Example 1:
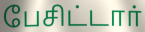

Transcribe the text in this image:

பேசிட்டார்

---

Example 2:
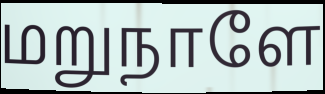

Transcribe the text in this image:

மறுநாளே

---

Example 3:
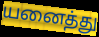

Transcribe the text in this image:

யனைத்து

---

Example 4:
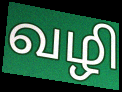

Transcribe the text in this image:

வழி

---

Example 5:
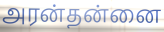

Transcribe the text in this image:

அரன்தன்னை